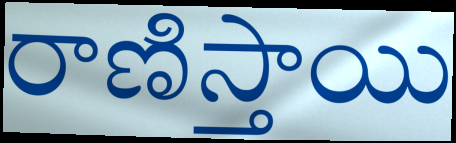
రాణిస్తాయి